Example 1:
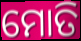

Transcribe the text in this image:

ମୋତି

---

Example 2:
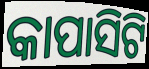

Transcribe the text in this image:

କାପାସିଟି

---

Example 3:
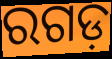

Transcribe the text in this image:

ରଗଡ଼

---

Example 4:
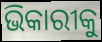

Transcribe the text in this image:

ଭିକାରୀକୁ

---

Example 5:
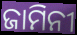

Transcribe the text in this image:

ଜାମିନୀ